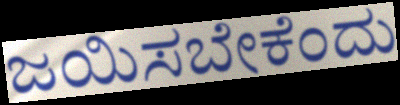
ಜಯಿಸಬೇಕೆಂದು